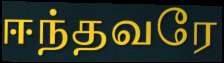
ஈந்தவரே